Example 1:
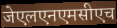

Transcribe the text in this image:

जेएलएनएमसीएच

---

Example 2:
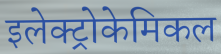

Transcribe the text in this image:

इलेक्ट्रोकेमिकल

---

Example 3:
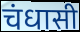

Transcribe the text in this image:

चंधासी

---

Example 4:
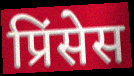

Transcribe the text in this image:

प्रिंसेस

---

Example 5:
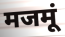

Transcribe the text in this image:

मजमूं